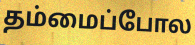
தம்மைப்போல